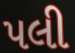
પલી